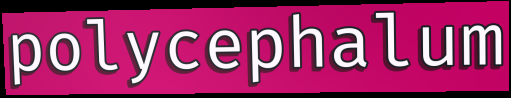
polycephalum